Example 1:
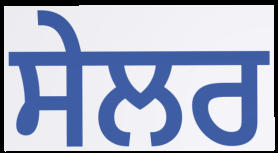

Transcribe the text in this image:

ਸੇਲਰ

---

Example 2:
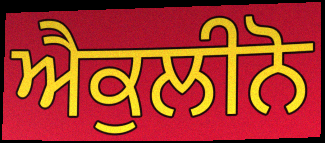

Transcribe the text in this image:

ਐਕੁਲੀਨੋ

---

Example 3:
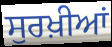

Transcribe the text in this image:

ਸੁਰਖ਼ੀਆਂ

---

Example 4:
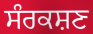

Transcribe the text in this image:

ਸੰਰਕਸ਼ਣ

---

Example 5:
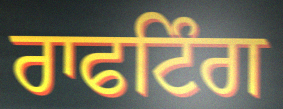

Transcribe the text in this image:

ਰਾਫਟਿੰਗ